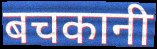
बचकानी